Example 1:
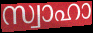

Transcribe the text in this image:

സ്വാഹാ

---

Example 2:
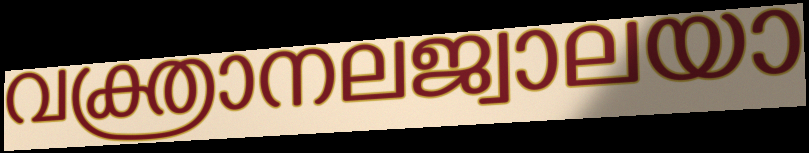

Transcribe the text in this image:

വക്ത്രാനലജ്വാലയാ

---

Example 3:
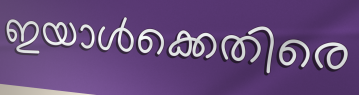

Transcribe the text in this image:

ഇയാൾക്കെതിരെ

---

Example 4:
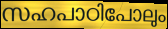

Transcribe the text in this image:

സഹപാഠിപോലും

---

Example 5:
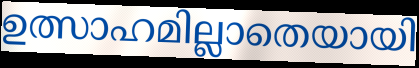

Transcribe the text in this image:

ഉത്സാഹമില്ലാതെയായി